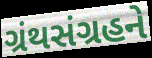
ગ્રંથસંગ્રહને